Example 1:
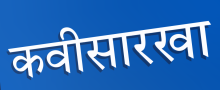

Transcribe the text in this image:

कवीसारखा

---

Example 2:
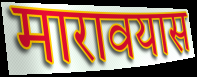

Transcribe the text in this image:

मारावयास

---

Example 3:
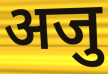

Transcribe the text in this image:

अजु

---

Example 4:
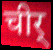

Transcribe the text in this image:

चीर्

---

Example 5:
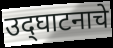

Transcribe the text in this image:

उद्‌घाटनाचे